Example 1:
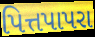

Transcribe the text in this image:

પિત્તપાપરા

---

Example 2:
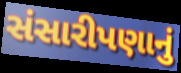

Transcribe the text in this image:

સંસારીપણાનું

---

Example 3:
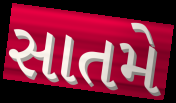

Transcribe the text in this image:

સાતમે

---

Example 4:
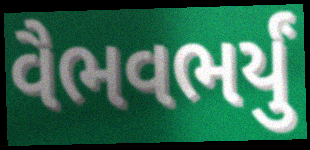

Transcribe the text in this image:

વૈભવભર્યું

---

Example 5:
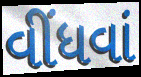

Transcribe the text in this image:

વીંધવાં